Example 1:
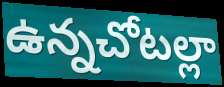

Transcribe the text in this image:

ఉన్నచోటల్లా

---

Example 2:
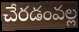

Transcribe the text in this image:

చేరడంవల్ల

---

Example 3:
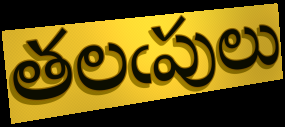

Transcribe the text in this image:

తలఁపులు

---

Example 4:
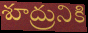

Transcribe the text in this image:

శూద్రునికి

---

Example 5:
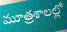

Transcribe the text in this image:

మూత్రశాలల్లో